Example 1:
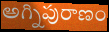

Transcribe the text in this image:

అగ్నిపురాణం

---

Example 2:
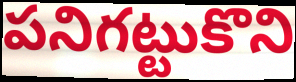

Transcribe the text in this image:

పనిగట్టుకొని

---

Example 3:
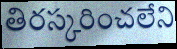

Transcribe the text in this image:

తిరస్కరించలేని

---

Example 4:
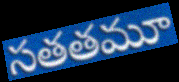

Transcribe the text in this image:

సతతమూ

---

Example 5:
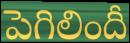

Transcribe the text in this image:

పెగిలిందీ